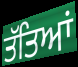
ਤੱਤਿਆਂ